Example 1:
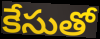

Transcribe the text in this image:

కేసుతో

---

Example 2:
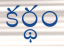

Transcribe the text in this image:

కర్థం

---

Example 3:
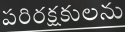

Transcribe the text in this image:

పరిరక్షకులను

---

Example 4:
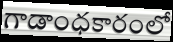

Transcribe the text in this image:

గాడాంధకారంలో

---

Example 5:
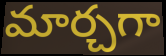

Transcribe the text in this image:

మార్చగా